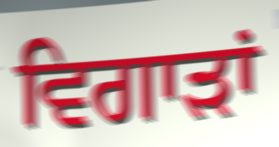
ਵਿਗਾੜਾਂ